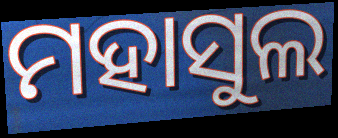
ମହାସୁଲ